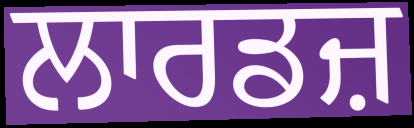
ਲਾਰਡਜ਼